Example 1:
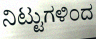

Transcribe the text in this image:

ನಿಟ್ಟುಗಳಿಂದ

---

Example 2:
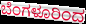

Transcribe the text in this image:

ಬೆಂಗಳೂರಿಂದ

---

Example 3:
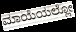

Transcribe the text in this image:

ಮಾಯೆಯಲ್ಲೋ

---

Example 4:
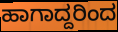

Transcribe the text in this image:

ಹಾಗಾದ್ದರಿಂದ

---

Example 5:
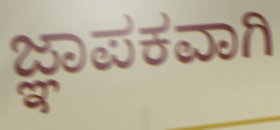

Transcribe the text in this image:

ಜ್ಞಾಪಕವಾಗಿ